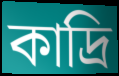
কাদ্রি